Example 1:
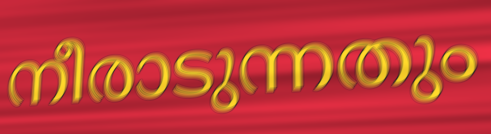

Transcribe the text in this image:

നീരാടുന്നതും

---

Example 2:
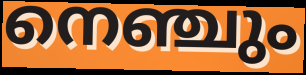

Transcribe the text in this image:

നെഞ്ചും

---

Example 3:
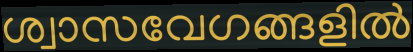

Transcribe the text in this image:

ശ്വാസവേഗങ്ങളിൽ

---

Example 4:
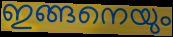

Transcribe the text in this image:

ഇങ്ങനെയും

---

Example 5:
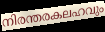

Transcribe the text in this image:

നിരന്തരകലഹവും